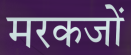
मरकजों